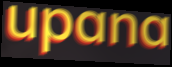
upana